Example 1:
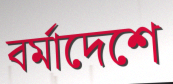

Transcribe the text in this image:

বর্মাদেশে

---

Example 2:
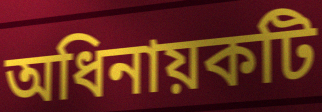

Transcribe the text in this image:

অধিনায়কটি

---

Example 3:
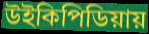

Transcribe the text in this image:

উইকিপিডিয়ায়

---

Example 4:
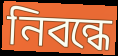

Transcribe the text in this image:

নিবন্ধে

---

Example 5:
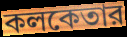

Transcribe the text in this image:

কলকেতার